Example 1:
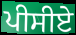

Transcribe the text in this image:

ਪੀਸੀਏ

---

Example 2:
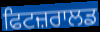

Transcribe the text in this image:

ਫਿਟਜ਼ਰਾਲਡ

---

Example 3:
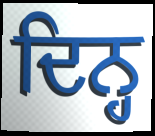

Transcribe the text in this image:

ਦਿਨ੍ਹ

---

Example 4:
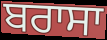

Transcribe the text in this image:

ਬਰਾਸਾ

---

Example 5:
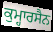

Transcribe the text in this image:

ਕੁਮ੍ਹਾਰਸੈਨ